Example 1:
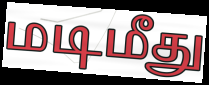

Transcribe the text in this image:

மடிமீது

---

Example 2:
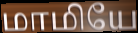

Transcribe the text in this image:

மாமியே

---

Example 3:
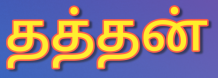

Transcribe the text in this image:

தத்தன்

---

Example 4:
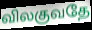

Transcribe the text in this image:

விலகுவதே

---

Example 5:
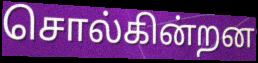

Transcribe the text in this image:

சொல்கின்றன